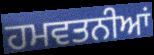
ਹਮਵਤਨੀਆਂ